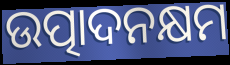
ଉତ୍ପାଦନକ୍ଷମ